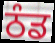
ਠੰਡ